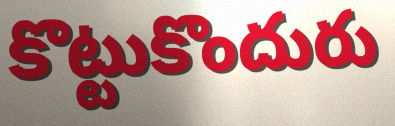
కొట్టుకొందురు